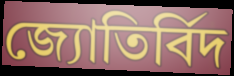
জ্যোতির্বিদ